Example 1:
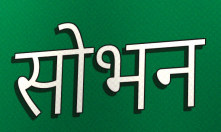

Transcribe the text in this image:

सोभन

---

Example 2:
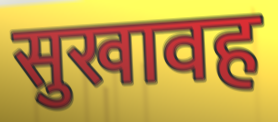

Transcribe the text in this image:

सुखावह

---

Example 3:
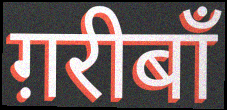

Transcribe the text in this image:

ग़रीबाँ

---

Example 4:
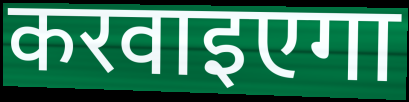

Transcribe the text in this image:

करवाइएगा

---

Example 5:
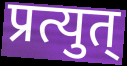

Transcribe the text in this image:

प्रत्युत्